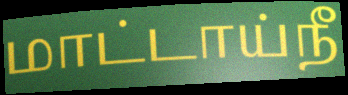
மாட்டாய்நீ